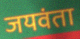
जयवंता